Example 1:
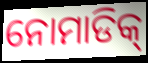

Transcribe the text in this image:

ନୋମାଡିକ୍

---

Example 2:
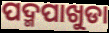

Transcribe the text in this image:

ପଦ୍ମପାଖୁଡା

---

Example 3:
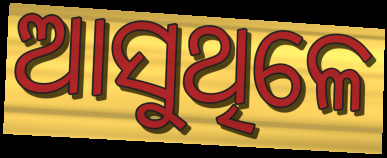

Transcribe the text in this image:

ଆସୁଥିଳେ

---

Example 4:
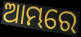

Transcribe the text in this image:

ଆମ୍ଭରେ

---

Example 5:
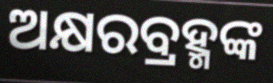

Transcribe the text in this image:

ଅକ୍ଷରବ୍ରହ୍ମଙ୍କ